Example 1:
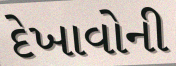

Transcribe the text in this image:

દેખાવોની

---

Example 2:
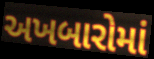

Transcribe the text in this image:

અખબારોમાં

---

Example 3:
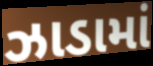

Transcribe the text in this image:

ઝાડામાં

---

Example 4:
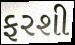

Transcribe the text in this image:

ફરશી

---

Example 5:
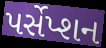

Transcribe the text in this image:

પર્સેપ્શન